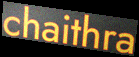
chaithra